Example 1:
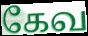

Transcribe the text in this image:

கேவ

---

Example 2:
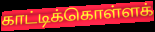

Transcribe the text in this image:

காட்டிக்கொள்ளக்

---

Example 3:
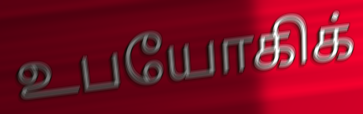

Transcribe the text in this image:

உபயோகிக்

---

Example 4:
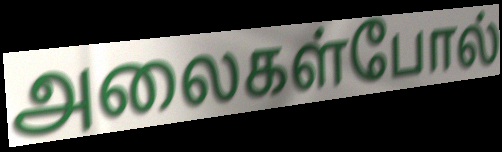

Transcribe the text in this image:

அலைகள்போல்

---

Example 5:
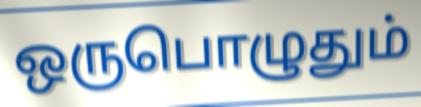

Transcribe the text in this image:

ஒருபொழுதும்